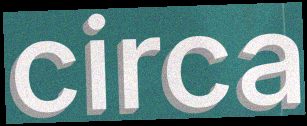
circa